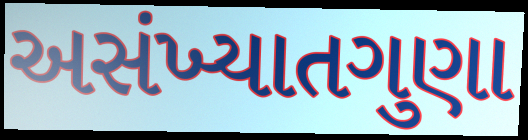
અસંખ્યાતગુણા